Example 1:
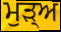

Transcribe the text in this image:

ਮੁਡ਼੍ਅ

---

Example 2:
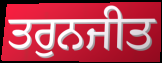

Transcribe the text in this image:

ਤਰੁਨਜੀਤ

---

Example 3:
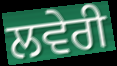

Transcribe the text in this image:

ਲਵੇਰੀ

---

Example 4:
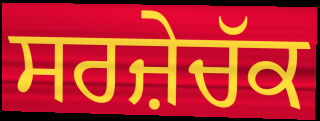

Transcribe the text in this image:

ਸਰਜ਼ੇਚੱਕ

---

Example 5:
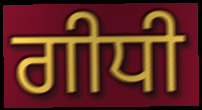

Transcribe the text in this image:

ਗੀਧੀ